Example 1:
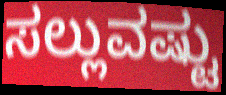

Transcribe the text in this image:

ಸಲ್ಲುವಷ್ಟು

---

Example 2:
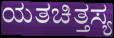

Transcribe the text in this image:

ಯತಚಿತ್ತಸ್ಯ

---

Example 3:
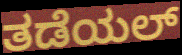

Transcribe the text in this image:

ತಡೆಯಲ್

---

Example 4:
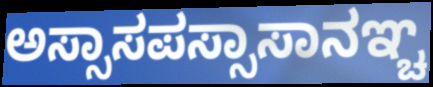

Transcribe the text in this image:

ಅಸ್ಸಾಸಪಸ್ಸಾಸಾನಞ್ಚ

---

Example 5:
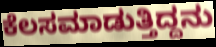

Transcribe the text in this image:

ಕೆಲಸಮಾಡುತ್ತಿದ್ದನು